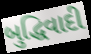
બુદ્ધિવાદી